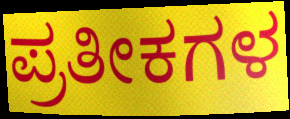
ಪ್ರತೀಕಗಳ